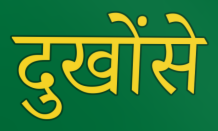
दुखोंसे